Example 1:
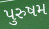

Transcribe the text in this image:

પુરુષમ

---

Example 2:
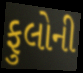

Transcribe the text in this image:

ફુલોની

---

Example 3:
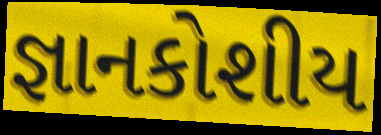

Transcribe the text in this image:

જ્ઞાનકોશીય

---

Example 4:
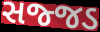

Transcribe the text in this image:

સજ્જડ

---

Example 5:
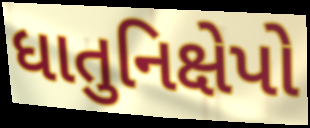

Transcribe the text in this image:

ધાતુનિક્ષેપો